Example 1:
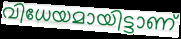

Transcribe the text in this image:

വിധേയമായിട്ടാണ്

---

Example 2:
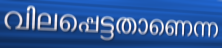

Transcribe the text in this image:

വിലപ്പെട്ടതാണെന്ന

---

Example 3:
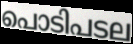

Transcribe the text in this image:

പൊടിപടല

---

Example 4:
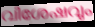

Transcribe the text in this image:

വിശേഷവും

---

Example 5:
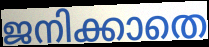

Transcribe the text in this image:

ജനിക്കാതെ